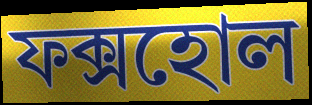
ফক্সহোল